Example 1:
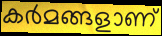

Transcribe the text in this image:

കർമങ്ങളാണ്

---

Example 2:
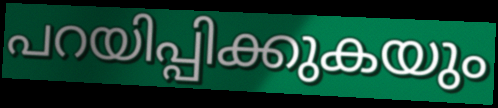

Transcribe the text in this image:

പറയിപ്പിക്കുകയും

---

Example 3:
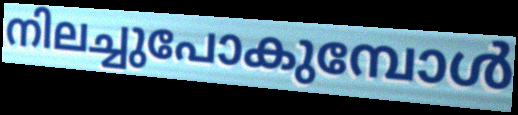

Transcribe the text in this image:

നിലച്ചുപോകുമ്പോൾ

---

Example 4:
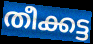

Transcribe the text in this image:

തീക്കട്ട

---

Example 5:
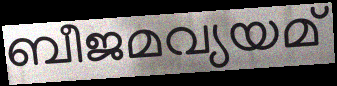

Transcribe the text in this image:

ബീജമവ്യയമ്